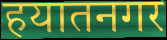
हयातनगर